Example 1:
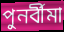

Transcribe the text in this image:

পুনর্বীমা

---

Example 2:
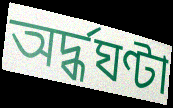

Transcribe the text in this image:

অর্দ্ধঘণ্টা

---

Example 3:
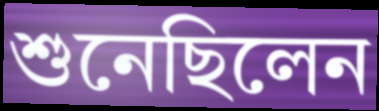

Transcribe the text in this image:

শুনেছিলেন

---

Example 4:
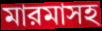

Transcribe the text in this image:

মারমাসহ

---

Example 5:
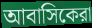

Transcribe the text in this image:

আবাসিকেরা